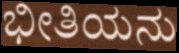
ಭೀತಿಯನು